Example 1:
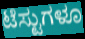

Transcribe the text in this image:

ಟೆಸ್ಟುಗಳೂ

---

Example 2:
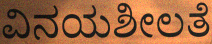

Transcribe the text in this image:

ವಿನಯಶೀಲತೆ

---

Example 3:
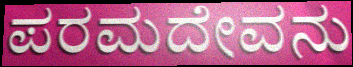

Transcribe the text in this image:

ಪರಮದೇವನು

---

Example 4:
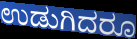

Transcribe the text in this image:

ಉಡುಗಿದರೂ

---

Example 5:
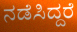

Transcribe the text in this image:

ನಡೆಸಿದ್ದರೆ